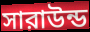
সারাউন্ড